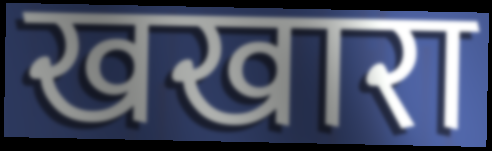
खखारा